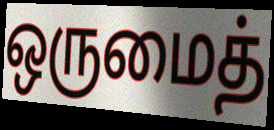
ஒருமைத்